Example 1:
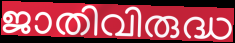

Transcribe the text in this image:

ജാതിവിരുദ്ധ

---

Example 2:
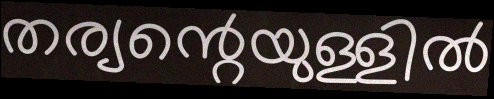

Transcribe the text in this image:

തര്യന്റെയുള്ളിൽ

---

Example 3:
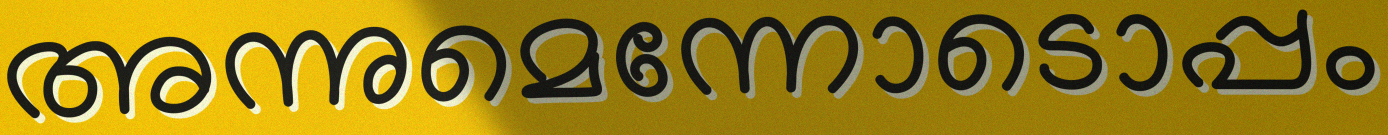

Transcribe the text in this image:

അന്നുമെന്നോടൊപ്പം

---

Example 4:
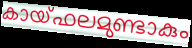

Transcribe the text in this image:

കായ്ഫലമുണ്ടാകും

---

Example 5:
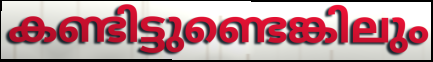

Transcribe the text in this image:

കണ്ടിട്ടുണ്ടെങ്കിലും